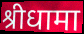
श्रीधामा